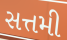
સત્તમી